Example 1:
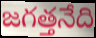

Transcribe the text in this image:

జగత్తనేది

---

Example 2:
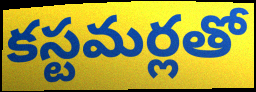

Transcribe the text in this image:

కస్టమర్లతో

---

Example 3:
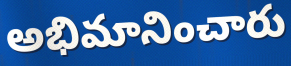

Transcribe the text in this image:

అభిమానించారు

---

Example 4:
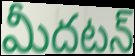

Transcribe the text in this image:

మీదటన్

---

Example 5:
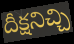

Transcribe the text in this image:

దీక్షనిచ్చి